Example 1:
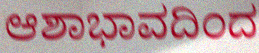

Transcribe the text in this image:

ಆಶಾಭಾವದಿಂದ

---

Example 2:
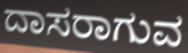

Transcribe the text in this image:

ದಾಸರಾಗುವ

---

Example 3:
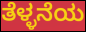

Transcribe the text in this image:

ತೆಳ್ಳನೆಯ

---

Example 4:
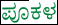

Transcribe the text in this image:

ಪೂಕಳ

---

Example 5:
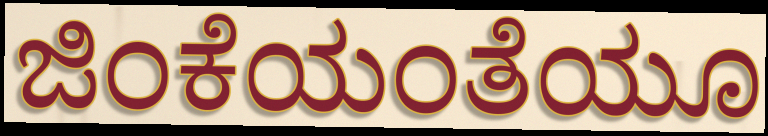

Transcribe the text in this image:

ಜಿಂಕೆಯಂತೆಯೂ